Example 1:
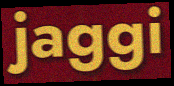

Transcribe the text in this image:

jaggi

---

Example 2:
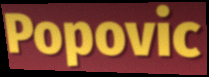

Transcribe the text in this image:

Popovic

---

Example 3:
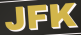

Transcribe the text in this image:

JFK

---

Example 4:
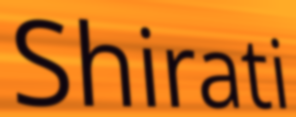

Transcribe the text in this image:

Shirati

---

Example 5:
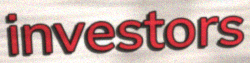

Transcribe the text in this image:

investors